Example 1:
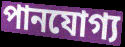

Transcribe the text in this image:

পানযোগ্য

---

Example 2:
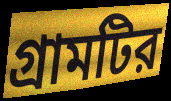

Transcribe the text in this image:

গ্রামটির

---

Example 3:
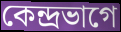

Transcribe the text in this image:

কেন্দ্রভাগে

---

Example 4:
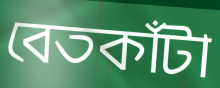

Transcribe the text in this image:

বেতকাঁটা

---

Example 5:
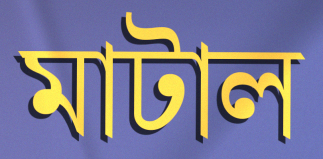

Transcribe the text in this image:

মাটাল